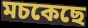
মচকেছে